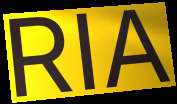
RIA